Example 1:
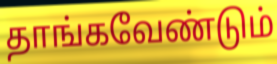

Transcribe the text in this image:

தாங்கவேண்டும்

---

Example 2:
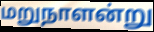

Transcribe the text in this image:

மறுநாளன்று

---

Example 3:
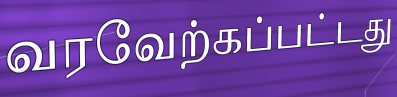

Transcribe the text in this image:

வரவேற்கப்பட்டது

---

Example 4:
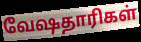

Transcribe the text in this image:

வேஷதாரிகள்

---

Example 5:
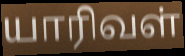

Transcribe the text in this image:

யாரிவள்